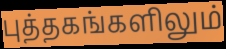
புத்தகங்களிலும்